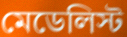
মেডেলিস্ট